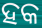
ହକ